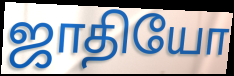
ஜாதியோ